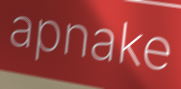
apnake